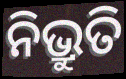
ନିଭ୍ରୁତି